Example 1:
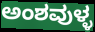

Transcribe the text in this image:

ಅಂಶವುಳ್ಳ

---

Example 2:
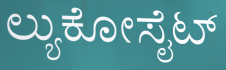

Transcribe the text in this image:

ಲ್ಯುಕೋಸೈಟ್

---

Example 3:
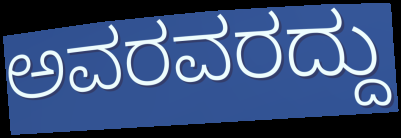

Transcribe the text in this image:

ಅವರವರದ್ದು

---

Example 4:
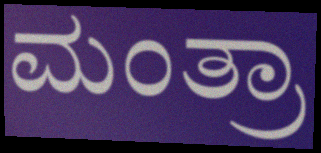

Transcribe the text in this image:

ಮಂತ್ರಾ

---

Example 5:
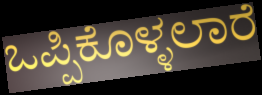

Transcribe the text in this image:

ಒಪ್ಪಿಕೊಳ್ಳಲಾರೆ